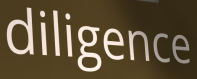
diligence